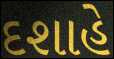
દશાહે